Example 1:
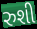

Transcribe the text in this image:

રુશી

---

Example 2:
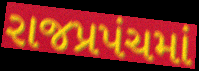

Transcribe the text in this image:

રાજપ્રપંચમાં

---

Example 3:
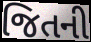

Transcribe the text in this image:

જિતની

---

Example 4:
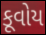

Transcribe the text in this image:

કૂવોય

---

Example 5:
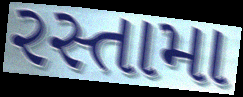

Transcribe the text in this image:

રસ્તામા